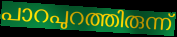
പാറപുറത്തിരുന്ന്